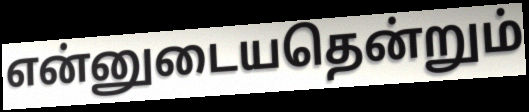
என்னுடையதென்றும்